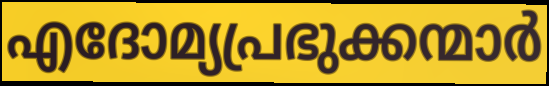
എദോമ്യപ്രഭുക്കന്മാർ